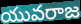
యువరాజ